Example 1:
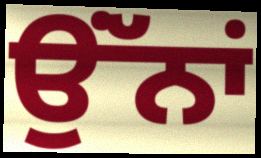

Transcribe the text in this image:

ਉਂੱਨਾਂ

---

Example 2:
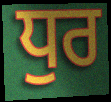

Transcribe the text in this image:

ਧੁਰ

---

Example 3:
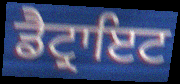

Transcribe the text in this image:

ਡੈਟ੍ਰਾਇਟ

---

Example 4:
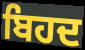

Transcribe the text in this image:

ਬਿਹਦ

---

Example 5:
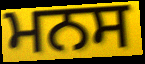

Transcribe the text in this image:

ਮਨਸ